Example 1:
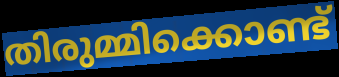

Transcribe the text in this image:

തിരുമ്മിക്കൊണ്ട്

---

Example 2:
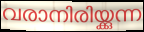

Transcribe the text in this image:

വരാനിരിയ്ക്കുന്ന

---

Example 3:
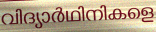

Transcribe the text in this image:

വിദ്യാർഥിനികളെ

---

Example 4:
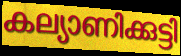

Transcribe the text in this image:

കല്യാണിക്കുട്ടി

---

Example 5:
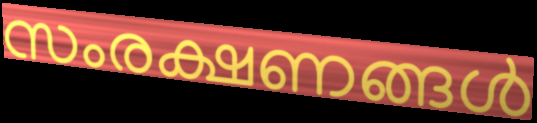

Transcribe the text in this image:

സംരക്ഷണങ്ങൾ